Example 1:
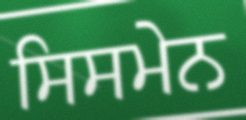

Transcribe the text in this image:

ਸਿਸਮੇਨ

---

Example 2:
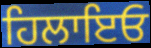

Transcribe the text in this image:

ਹਿਲਾਇਓ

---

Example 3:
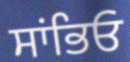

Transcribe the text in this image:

ਸਾਂਭਿਓ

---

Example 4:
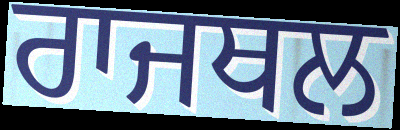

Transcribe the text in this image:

ਰਾਜਥਲ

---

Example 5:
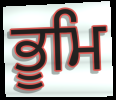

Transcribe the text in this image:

ਭੂਮਿ